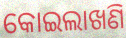
କୋଇଲାଖଣି